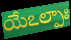
యేఽల్పాః